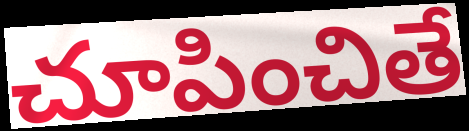
చూపించితే